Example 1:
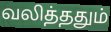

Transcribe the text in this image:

வலித்ததும்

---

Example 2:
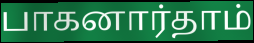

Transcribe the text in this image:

பாகனார்தாம்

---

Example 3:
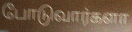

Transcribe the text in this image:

போடுவார்களா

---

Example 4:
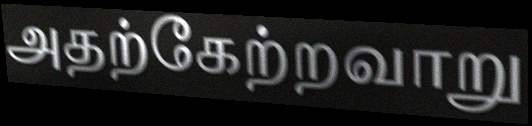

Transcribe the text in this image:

அதற்கேற்றவாறு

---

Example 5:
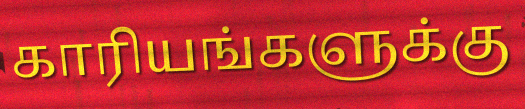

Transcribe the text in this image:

காரியங்களுக்கு